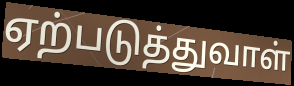
ஏற்படுத்துவாள்